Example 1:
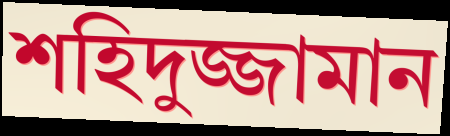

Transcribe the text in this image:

শহিদুজ্জামান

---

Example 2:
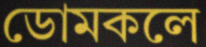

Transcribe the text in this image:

ডোমকলে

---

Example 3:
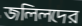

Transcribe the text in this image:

জলিলদের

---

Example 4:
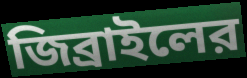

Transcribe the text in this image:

জিব্রাইলের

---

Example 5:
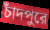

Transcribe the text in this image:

চাঁদপুরে